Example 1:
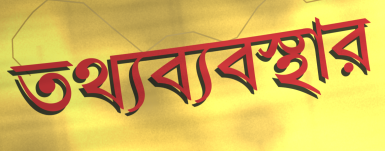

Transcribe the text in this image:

তথ্যব্যবস্থার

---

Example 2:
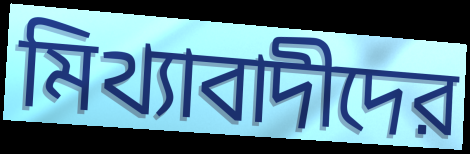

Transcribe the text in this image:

মিথ্যাবাদীদের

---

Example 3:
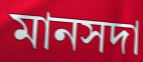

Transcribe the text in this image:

মানসদা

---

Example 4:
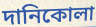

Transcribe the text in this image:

দানিকোলা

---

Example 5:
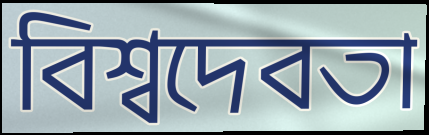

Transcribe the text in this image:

বিশ্বদেবতা